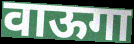
वाऊगा